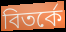
বিতর্কে